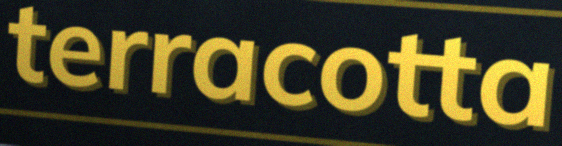
terracotta